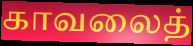
காவலைத்